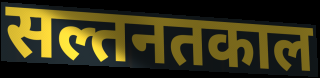
सल्तनतकाल